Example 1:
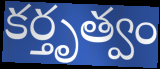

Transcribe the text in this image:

కర్తృత్వం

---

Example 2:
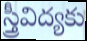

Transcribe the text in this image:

స్త్రీవిద్యకు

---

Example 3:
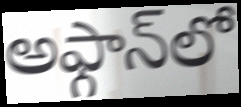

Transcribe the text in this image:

అఫ్గాన్‌లో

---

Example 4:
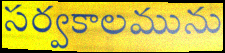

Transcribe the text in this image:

సర్వకాలమును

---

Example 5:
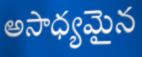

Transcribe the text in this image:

అసాధ్యమైన